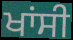
ਖਾਂਸੀ